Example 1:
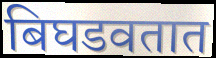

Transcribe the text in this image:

बिघडवतात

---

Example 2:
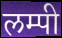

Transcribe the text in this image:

लम्पी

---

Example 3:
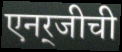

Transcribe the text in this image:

एनर्जीची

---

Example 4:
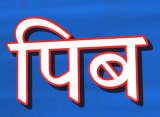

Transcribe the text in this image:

पिब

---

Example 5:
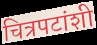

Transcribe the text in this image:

चित्रपटांशी